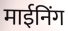
माईनिंग